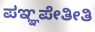
ಪಞ್ಞಪೇತೀತಿ